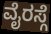
ವೈರಸ್ಗೆ